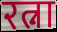
रत्ना